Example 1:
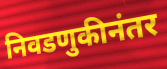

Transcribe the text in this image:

निवडणुकीनंतर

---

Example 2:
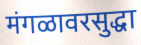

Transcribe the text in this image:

मंगळावरसुद्धा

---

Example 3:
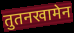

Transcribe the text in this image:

तुतनखामेन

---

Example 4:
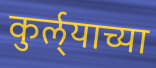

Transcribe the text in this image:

कुर्ल्याच्या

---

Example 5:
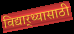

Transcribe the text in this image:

विद्यार्थ्यासाठी